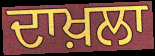
ਦਾਖ਼ਲਾ